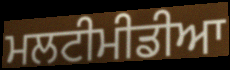
ਮਲਟੀਮੀਡੀਆ